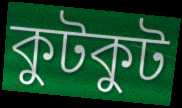
কুটকুট